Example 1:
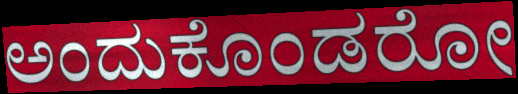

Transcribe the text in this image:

ಅಂದುಕೊಂಡರೋ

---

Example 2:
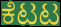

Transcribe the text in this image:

ಕೆಟಟ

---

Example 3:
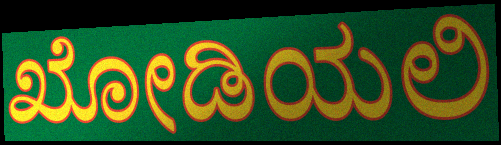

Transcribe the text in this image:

ಖೋಡಿಯಲಿ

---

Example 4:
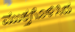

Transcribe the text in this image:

ಮುಕ್ತಗೊಳಿಸಿದ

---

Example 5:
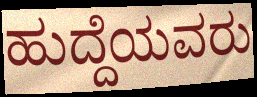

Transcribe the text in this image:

ಹುದ್ದೆಯವರು